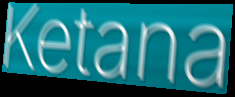
Ketana